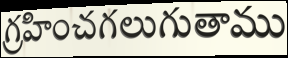
గ్రహించగలుగుతాము